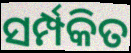
ସର୍ମ୍ପକିତ